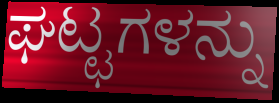
ಘಟ್ಟಗಳನ್ನು